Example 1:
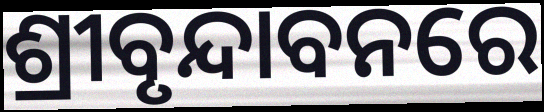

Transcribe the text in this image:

ଶ୍ରୀବୃନ୍ଦାବନରେ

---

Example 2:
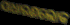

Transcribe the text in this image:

ସାଧାରଣଲୋକ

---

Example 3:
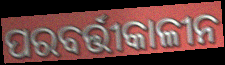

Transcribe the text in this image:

ପରବର୍ତ୍ତୀକାଳୀନ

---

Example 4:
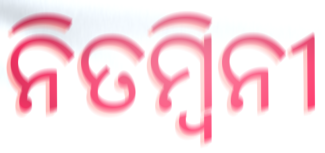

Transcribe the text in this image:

ନିତମ୍ବିନୀ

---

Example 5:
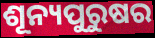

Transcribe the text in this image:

ଶୂନ୍ୟପୁରୁଷର